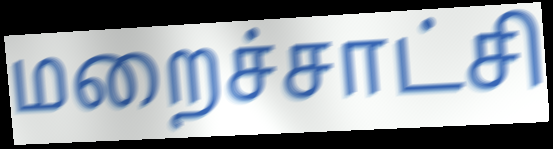
மறைச்சாட்சி